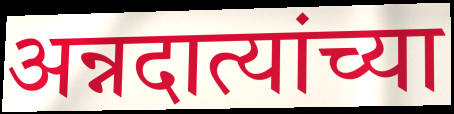
अन्नदात्यांच्या